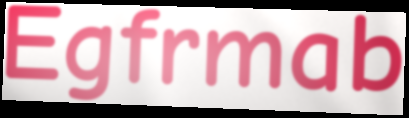
Egfrmab